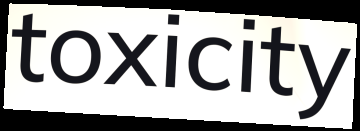
toxicity